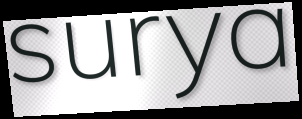
surya